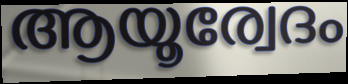
ആയൂര്വേദം